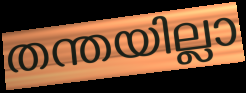
തന്തയില്ലാ